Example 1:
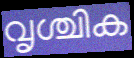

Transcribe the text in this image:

വൃശ്ചിക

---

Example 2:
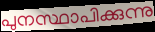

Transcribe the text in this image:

പുനസ്ഥാപിക്കുന്നു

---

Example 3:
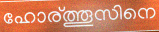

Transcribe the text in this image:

ഹോര്ത്തൂസിനെ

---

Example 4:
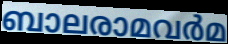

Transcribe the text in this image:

ബാലരാമവർമ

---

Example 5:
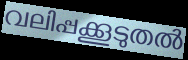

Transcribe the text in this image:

വലിപ്പക്കൂടുതൽ